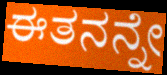
ಈತನನ್ನೇ